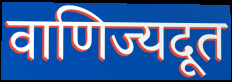
वाणिज्यदूत